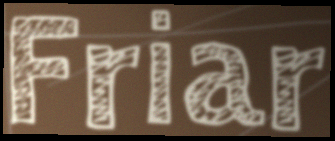
Friar